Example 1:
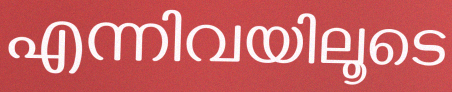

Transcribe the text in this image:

എന്നിവയിലൂടെ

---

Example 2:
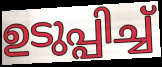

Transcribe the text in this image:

ഉടുപ്പിച്ച്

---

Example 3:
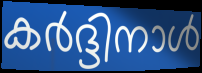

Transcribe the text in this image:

കർദ്ദിനാൾ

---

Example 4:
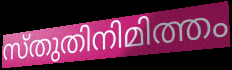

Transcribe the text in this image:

സ്തുതിനിമിത്തം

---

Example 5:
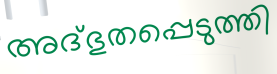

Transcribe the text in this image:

അദ്ഭുതപ്പെടുത്തി